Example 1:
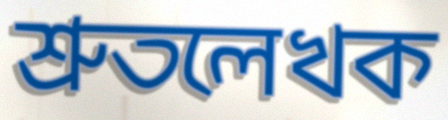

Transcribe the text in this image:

শ্রুতলেখক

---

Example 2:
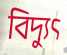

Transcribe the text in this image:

বিদ্যুৎ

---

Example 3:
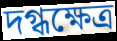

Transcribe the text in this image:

দগ্ধক্ষেত্র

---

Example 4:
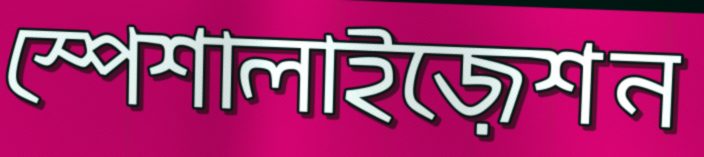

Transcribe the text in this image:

স্পেশালাইজ়েশন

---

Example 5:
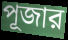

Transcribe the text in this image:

পূজার